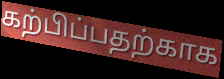
கற்பிப்பதற்காக